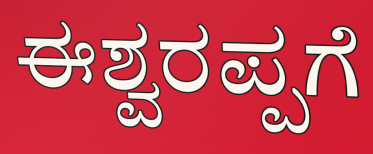
ಈಶ್ವರಪ್ಪಗೆ